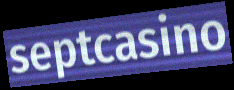
septcasino